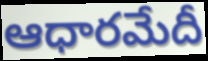
ఆధారమేదీ